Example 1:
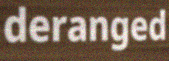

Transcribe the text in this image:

deranged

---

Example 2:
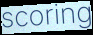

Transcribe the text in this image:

scoring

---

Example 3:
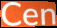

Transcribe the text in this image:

Cen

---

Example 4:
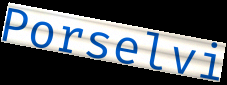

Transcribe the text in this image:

Porselvi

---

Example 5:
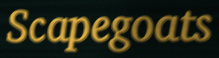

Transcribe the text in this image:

Scapegoats